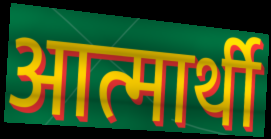
आत्मार्थी